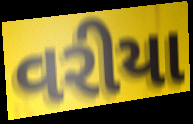
વરીયા